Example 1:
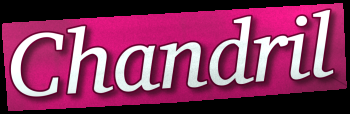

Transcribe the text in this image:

Chandril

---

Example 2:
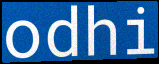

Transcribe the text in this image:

odhi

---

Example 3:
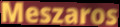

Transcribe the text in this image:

Meszaros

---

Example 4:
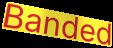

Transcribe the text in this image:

Banded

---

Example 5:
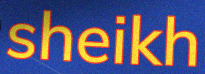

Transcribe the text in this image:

sheikh